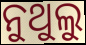
ନୁଥୁଲୁ